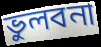
ভুলবনা